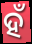
ହଁ